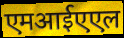
एमआईएएल